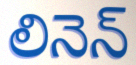
లినెన్